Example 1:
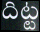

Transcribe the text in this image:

దిట్ట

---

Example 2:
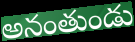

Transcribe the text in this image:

అనంతుండు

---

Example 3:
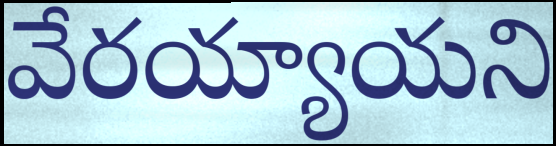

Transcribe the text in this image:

వేరయ్యాయని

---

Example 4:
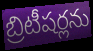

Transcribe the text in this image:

బ్రిటీషర్లను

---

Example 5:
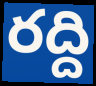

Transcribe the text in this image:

రద్ది